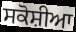
ਸਕੋਸ਼ੀਆ